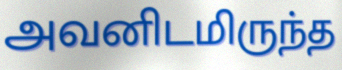
அவனிடமிருந்த